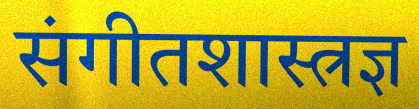
संगीतशास्त्रज्ञ